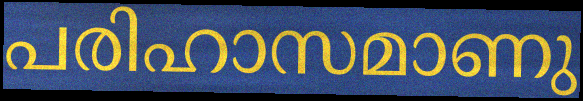
പരിഹാസമാണു